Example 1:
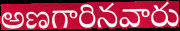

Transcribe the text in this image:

అణగారినవారు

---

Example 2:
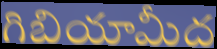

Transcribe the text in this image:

గిబియామీద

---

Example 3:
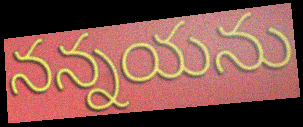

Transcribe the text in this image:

నన్నయను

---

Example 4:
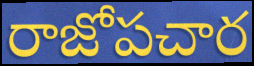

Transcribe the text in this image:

రాజోపచార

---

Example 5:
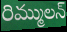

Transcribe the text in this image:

రిమ్ములన్